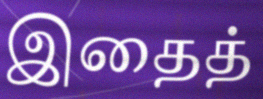
இதைத்